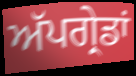
ਅੱਪਗ੍ਰੇਡਾਂ